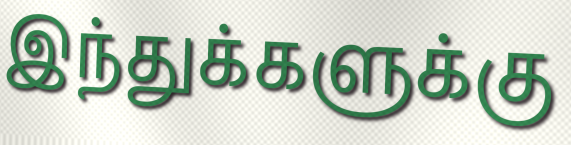
இந்துக்களுக்கு